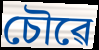
চৌৱে